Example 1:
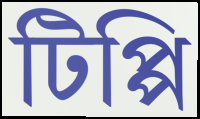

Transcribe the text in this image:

টিপ্পি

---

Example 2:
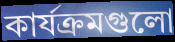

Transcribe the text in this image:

কার্যক্রমগুলো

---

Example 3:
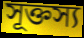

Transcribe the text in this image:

সূক্তস্য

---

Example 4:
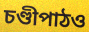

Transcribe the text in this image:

চণ্ডীপাঠও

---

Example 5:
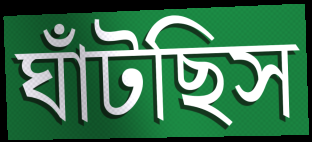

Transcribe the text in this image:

ঘাঁটছিস